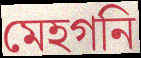
মেহগনি